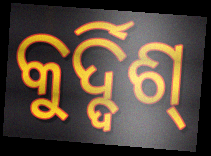
କୁର୍ଦ୍ଦିଶ୍